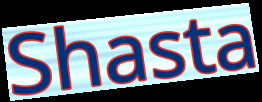
Shasta